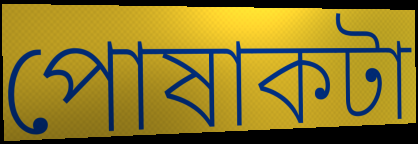
পোষাকটা